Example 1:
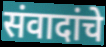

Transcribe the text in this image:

संवादांचे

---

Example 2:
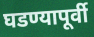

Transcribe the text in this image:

घडण्यापूर्वी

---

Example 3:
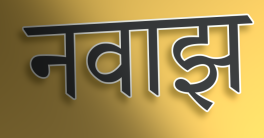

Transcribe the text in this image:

नवाझ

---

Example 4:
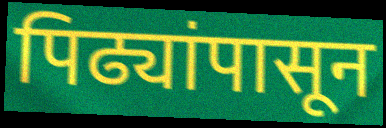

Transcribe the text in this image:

पिढ्यांपासून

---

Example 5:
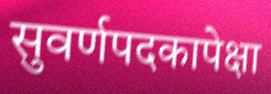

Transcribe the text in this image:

सुवर्णपदकापेक्षा